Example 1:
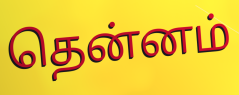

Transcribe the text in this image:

தென்னம்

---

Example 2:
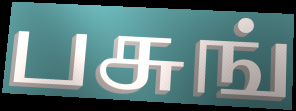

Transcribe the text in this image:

பசுங்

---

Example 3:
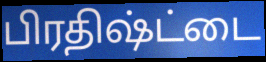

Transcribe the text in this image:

பிரதிஷ்ட்டை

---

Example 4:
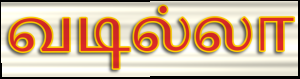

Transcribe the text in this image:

வடில்லா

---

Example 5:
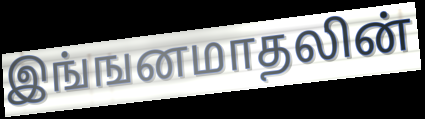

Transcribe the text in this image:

இங்ஙனமாதலின்